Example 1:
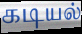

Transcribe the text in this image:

கடியல்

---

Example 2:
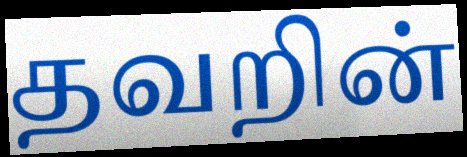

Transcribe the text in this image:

தவறின்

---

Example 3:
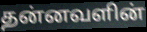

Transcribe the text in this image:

தன்னவளின்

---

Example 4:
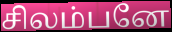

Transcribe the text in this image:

சிலம்பனே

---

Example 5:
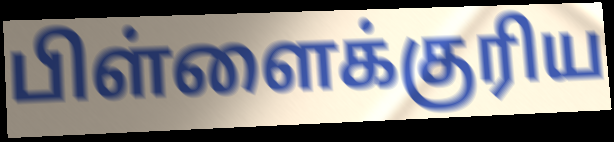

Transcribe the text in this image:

பிள்ளைக்குரிய